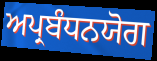
ਅਪ੍ਰਬੰਧਨਯੋਗ